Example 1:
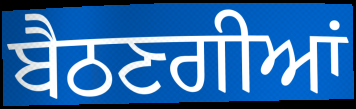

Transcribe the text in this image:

ਬੈਠਣਗੀਆਂ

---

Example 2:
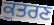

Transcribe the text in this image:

ਕੁਤਰਣ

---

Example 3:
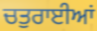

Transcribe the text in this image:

ਚਤੁਰਾਈਆਂ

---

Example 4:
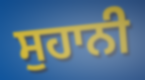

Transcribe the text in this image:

ਸੁਹਾਨੀ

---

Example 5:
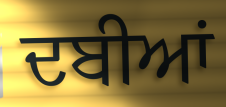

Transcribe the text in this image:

ਦਬੀਆਂ